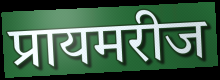
प्रायमरीज